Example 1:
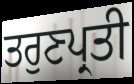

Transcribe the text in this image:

ਤਰੁਣਪ੍ਰਤੀ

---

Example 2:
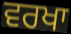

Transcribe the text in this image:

ਵਰਖਾ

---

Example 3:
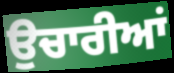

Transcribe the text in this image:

ਉਚਾਰੀਆਂ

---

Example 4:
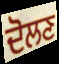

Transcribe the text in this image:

ਦੋਲਣ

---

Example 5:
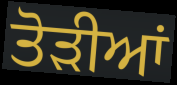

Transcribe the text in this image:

ਤੋਡ਼ੀਆਂ